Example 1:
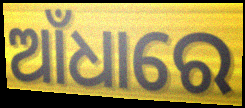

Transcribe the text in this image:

ଆଁଧାରେ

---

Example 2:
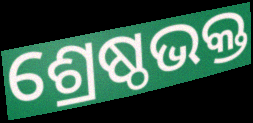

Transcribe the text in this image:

ଶ୍ରେଷ୍ଠଭକ୍ତ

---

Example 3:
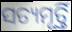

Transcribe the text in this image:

ସତ୍ୟମୂର୍ତ୍ତି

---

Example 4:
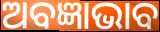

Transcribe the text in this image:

ଅବଜ୍ଞାଭାବ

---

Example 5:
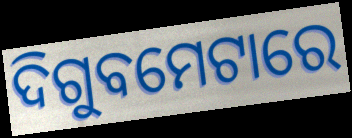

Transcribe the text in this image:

ଦିଗୁବମେଟାରେ